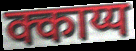
क्काय्य